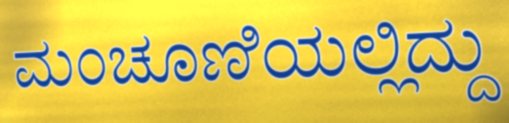
ಮಂಚೂಣಿಯಲ್ಲಿದ್ದು